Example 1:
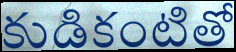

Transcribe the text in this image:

కుడికంటితో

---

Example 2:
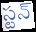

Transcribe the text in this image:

స్టన్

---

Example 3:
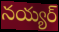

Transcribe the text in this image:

నయ్యర్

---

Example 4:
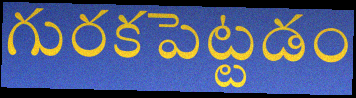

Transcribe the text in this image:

గురకపెట్టడం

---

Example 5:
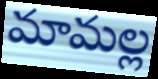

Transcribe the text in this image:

మామల్ల